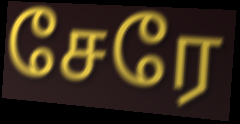
சேரே